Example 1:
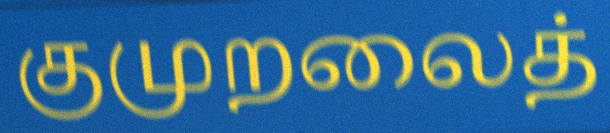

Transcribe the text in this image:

குமுறலைத்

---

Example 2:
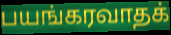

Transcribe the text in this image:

பயங்கரவாதக்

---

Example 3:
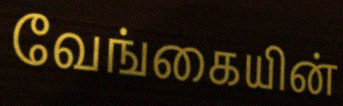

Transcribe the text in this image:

வேங்கையின்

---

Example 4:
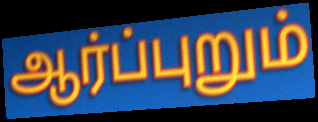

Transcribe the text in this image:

ஆர்ப்புறும்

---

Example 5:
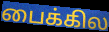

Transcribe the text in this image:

பைக்கில